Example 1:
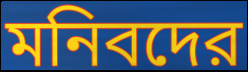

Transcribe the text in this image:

মনিবদের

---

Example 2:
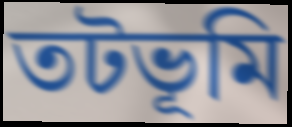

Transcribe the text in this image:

তটভূমি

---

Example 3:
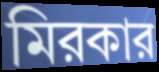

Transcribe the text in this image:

মিরকার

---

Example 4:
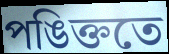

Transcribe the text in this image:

পঙিক্ততে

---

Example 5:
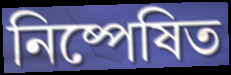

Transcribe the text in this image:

নিষ্পেষিত